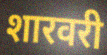
शारवरी